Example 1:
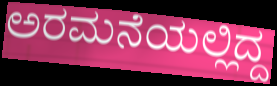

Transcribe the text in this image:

ಅರಮನೆಯಲ್ಲಿದ್ದ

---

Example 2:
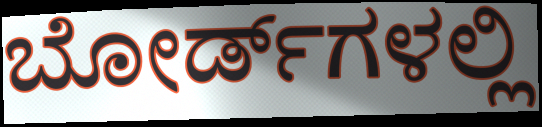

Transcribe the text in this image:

ಬೋರ್ಡ್‌ಗಳಲ್ಲಿ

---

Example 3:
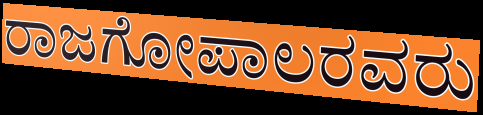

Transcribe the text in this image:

ರಾಜಗೋಪಾಲರವರು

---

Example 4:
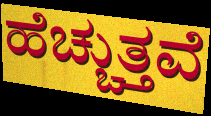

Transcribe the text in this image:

ಹೆಚ್ಚುತ್ತವೆ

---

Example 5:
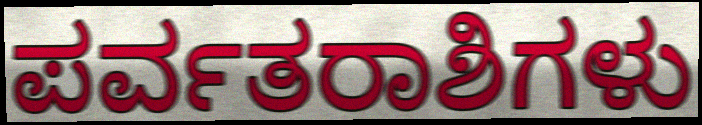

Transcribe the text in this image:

ಪರ್ವತರಾಶಿಗಳು